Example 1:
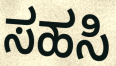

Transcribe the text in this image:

ಸಹಸಿ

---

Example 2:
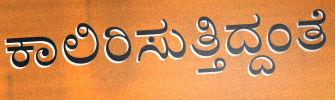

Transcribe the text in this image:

ಕಾಲಿರಿಸುತ್ತಿದ್ದಂತೆ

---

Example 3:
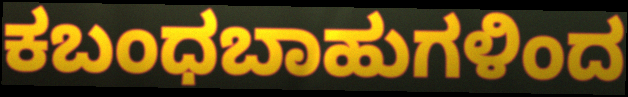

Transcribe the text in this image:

ಕಬಂಧಬಾಹುಗಳಿಂದ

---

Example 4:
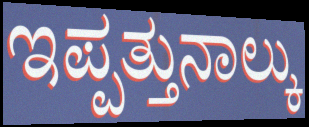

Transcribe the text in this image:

ಇಪ್ಪತ್ತುನಾಲ್ಕು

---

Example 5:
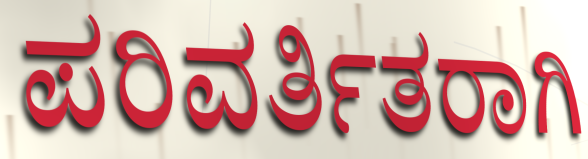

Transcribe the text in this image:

ಪರಿವರ್ತಿತರಾಗಿ